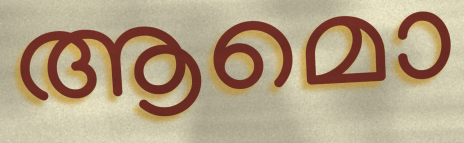
ആമൊ